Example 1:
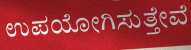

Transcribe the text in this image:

ಉಪಯೋಗಿಸುತ್ತೇವೆ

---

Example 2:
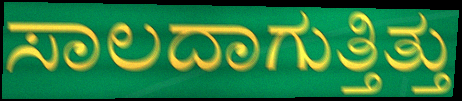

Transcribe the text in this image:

ಸಾಲದಾಗುತ್ತಿತ್ತು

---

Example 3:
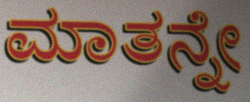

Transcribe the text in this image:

ಮಾತನ್ನೇ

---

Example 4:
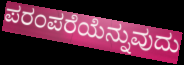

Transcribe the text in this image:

ಪರಂಪರೆಯೆನ್ನುವುದು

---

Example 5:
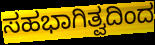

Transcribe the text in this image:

ಸಹಭಾಗಿತ್ವದಿಂದ